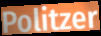
Politzer